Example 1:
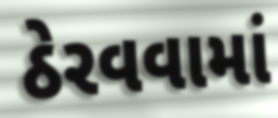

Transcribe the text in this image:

ઠેરવવામાં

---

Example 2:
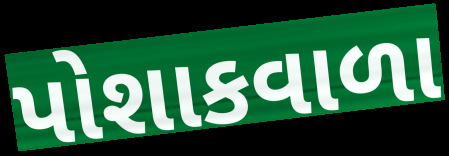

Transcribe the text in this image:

પોશાકવાળા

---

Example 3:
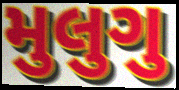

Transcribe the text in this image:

મુલુગુ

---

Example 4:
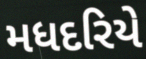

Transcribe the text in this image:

મધદરિયે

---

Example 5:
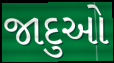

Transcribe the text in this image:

જાદુઓ